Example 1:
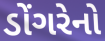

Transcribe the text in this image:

ડોંગરેનો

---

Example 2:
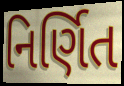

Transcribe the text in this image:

નિર્ણિત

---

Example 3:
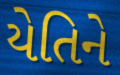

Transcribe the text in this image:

યેતિને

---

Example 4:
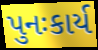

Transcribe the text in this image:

પુનઃકાર્ય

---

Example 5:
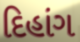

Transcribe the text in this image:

દિહાંગ